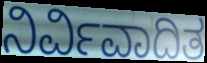
ನಿರ್ವಿವಾದಿತ